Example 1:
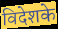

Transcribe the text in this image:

विदेशके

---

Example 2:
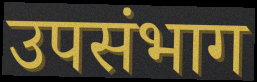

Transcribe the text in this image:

उपसंभाग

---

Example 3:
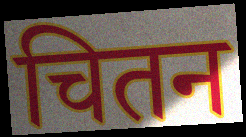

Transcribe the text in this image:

चितन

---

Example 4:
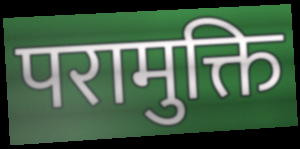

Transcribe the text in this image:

परामुक्ति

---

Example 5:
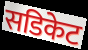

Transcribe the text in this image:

सडिकेट